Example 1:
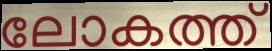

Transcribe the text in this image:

ലോകത്ത്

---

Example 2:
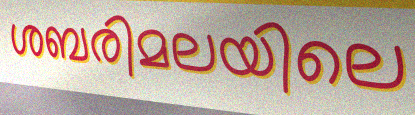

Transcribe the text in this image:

ശബരിമലയിലെ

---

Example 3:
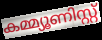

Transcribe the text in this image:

കമ്മ്യൂണിസ്റ്റ്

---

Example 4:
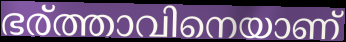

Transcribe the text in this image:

ഭര്ത്താവിനെയാണ്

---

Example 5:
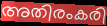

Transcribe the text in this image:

അതിരംകരി